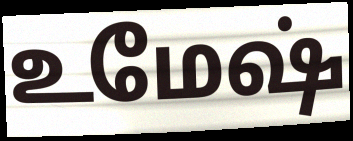
உமேஷ்